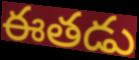
ఈతడు